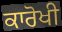
ਕਾਰੋਖੀ